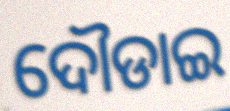
ଦୌଡାଇ